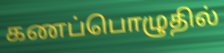
கணப்பொழுதில்